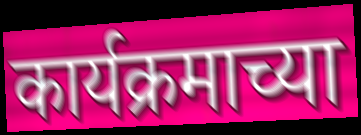
कार्यक्रमाच्या